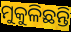
ମୁକୁଳିଛନ୍ତି